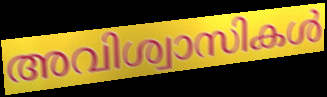
അവിശ്വാസികൾ